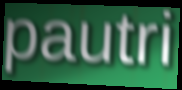
pautri